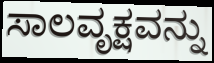
ಸಾಲವೃಕ್ಷವನ್ನು